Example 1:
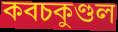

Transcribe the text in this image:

কবচকুণ্ডল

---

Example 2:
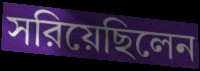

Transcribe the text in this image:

সরিয়েছিলেন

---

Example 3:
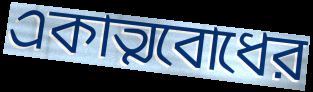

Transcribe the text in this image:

একাত্মবোধের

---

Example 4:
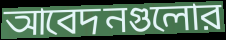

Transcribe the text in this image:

আবেদনগুলোর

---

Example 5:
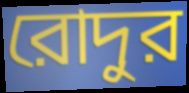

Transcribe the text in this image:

রোদুর